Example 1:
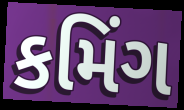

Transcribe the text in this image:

કમિંગ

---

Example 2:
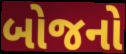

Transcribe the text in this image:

બોજનો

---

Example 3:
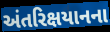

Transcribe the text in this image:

અંતરિક્ષયાનના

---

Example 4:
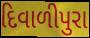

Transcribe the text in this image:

દિવાળીપુરા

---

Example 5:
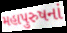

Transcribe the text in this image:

મહાપુરુષનાં